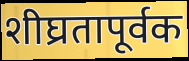
शीघ्रतापूर्वक